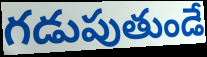
గడుపుతుండే